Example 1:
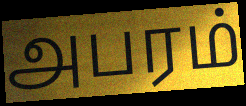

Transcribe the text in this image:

அபரம்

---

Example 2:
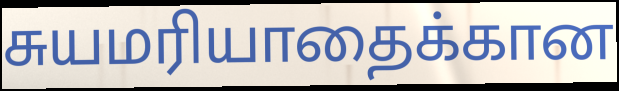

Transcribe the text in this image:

சுயமரியாதைக்கான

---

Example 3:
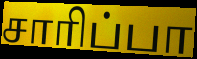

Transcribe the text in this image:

சாரிப்பா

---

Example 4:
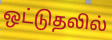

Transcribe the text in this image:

ஒட்டுதலில்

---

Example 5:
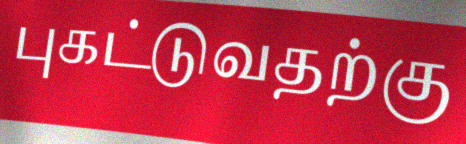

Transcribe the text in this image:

புகட்டுவதற்கு